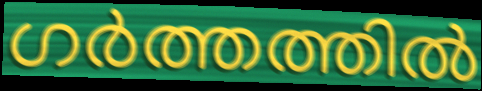
ഗർത്തത്തിൽ